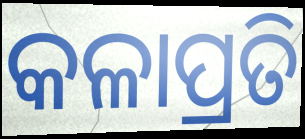
କଳାପ୍ରତି